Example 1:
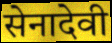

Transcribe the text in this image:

सेनादेवी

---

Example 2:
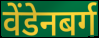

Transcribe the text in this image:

वेंडेनबर्ग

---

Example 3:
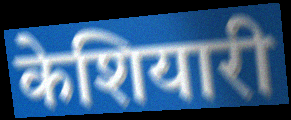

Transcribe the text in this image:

केशियारी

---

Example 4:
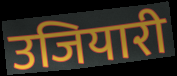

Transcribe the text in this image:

उजियारी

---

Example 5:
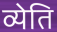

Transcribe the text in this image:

व्येति